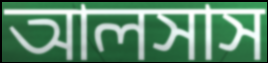
আলসাস